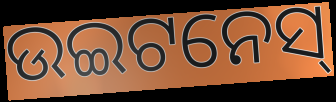
ଉଇଟନେସ୍